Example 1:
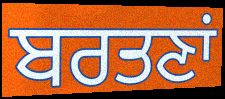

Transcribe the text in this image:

ਬਰਤਣਾਂ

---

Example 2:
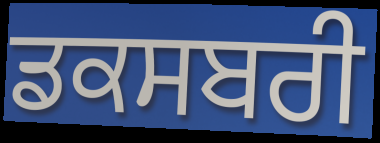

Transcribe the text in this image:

ਡਕਸਬਰੀ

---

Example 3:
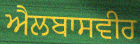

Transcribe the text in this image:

ਐਲਬਾਸਵੀਰ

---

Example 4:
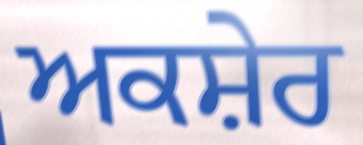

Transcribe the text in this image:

ਅਕਸ਼ੇਰ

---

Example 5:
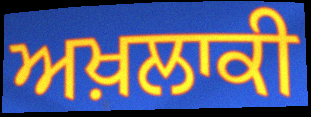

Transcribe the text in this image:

ਅਖ਼ਲਾਕੀ